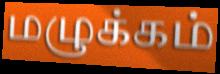
மழுக்கம்